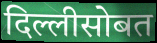
दिल्लीसोबत